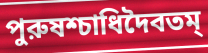
পুরুষশ্চাধিদৈবতম্